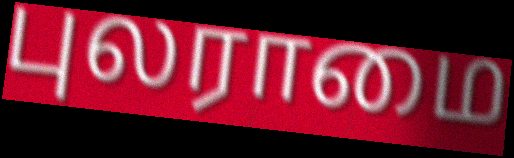
புலராமை